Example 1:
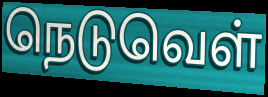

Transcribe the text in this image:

நெடுவெள்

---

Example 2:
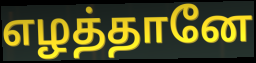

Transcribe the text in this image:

எழத்தானே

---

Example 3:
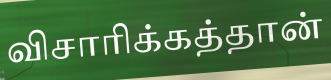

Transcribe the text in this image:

விசாரிக்கத்தான்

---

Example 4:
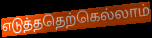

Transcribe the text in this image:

எடுத்ததெற்கெல்லாம்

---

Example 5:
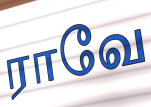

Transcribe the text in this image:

ராவே